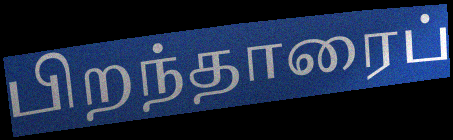
பிறந்தாரைப்